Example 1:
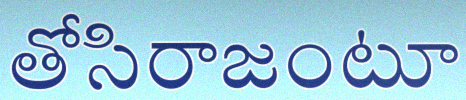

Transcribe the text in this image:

తోసిరాజంటూ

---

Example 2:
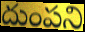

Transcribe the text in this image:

దుంపని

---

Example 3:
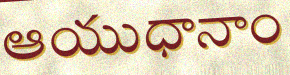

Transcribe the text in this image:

ఆయుధానాం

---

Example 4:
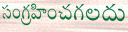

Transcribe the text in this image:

సంగ్రహించగలదు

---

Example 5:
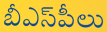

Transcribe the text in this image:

బీఎస్‌పీలు